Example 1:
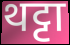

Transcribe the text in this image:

थट्टा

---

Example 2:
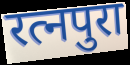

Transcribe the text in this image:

रत्नपुरा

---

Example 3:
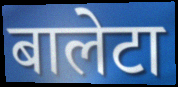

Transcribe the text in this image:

बालेटा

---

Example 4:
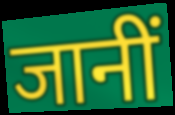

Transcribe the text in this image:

जानीं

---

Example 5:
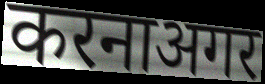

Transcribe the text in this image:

करनाअगर